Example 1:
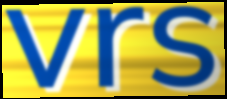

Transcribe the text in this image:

vrs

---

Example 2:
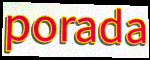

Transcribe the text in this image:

porada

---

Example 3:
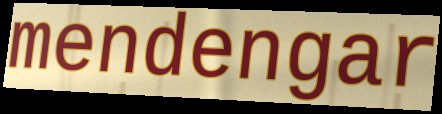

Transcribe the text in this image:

mendengar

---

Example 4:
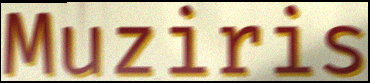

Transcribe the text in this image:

Muziris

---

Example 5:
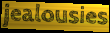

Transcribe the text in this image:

jealousies